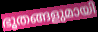
ഭൂതങ്ങളുമായി